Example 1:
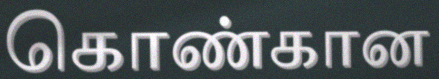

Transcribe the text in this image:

கொண்கான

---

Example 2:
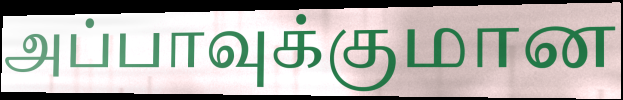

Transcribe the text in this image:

அப்பாவுக்குமான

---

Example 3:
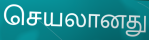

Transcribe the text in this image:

செயலானது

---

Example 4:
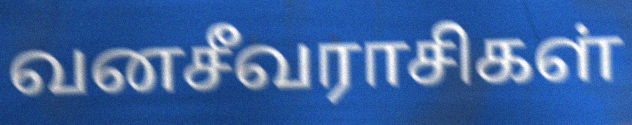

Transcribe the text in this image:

வனசீவராசிகள்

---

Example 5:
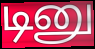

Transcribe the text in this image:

டினு